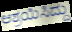
ಆಶ್ರಯಿಸಿದ್ದು